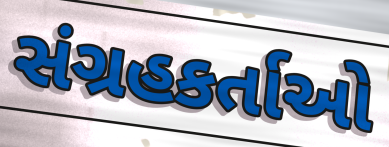
સંગ્રહકર્તાઓ